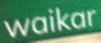
waikar